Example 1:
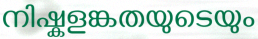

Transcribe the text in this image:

നിഷ്കളങ്കതയുടെയും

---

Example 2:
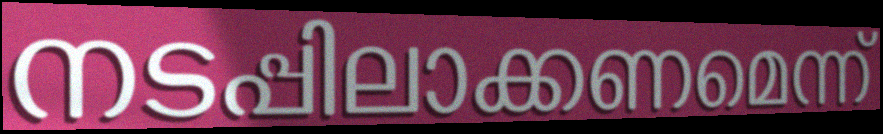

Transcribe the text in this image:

നടപ്പിലാക്കണമെന്ന്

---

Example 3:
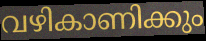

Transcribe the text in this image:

വഴികാണിക്കും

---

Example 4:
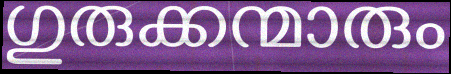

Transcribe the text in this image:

ഗുരുക്കന്മാരും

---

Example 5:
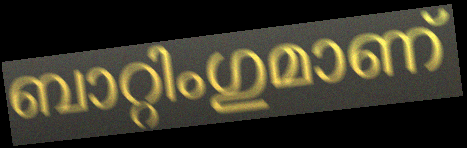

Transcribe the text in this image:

ബാറ്റിംഗുമാണ്